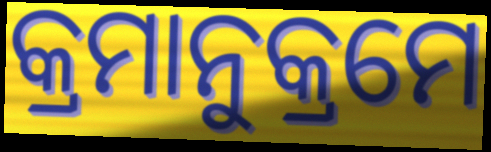
କ୍ରମାନୁକ୍ରମେ